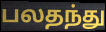
பலதந்து